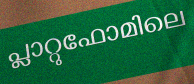
പ്ലാറ്റുഫോമിലെ